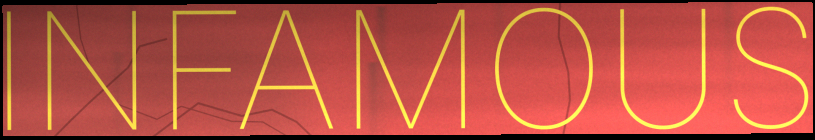
INFAMOUS